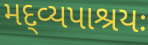
મદ્વ્યપાશ્રયઃ